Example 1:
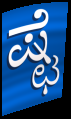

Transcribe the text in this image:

ಷ್ಟೆ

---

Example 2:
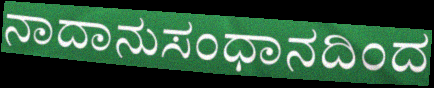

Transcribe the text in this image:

ನಾದಾನುಸಂಧಾನದಿಂದ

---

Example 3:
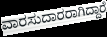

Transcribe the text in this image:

ವಾರಸುದಾರರಾಗಿದ್ದಾರೆ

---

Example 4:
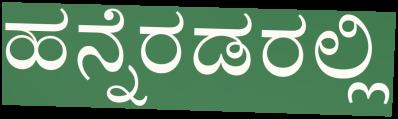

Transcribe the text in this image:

ಹನ್ನೆರಡರಲ್ಲಿ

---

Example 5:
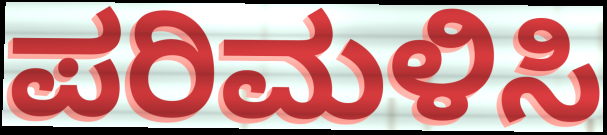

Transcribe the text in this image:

ಪರಿಮಳಿಸಿ